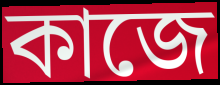
কাজে